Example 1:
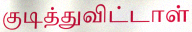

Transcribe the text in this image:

குடித்துவிட்டாள்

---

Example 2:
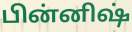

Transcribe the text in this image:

பின்னிஷ்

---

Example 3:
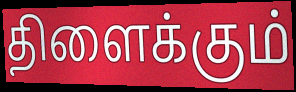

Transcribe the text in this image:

திளைக்கும்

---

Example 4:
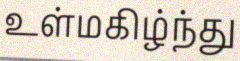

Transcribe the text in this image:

உள்மகிழ்ந்து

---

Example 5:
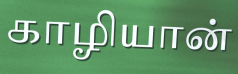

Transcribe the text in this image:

காழியான்